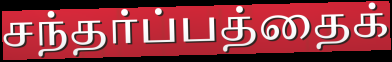
சந்தர்ப்பத்தைக்